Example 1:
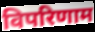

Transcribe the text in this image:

विपरिणाम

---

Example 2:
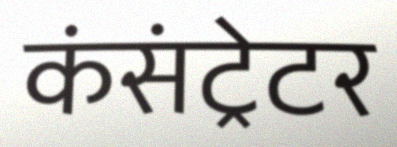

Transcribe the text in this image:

कंसंट्रेटर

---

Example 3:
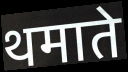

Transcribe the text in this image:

थमाते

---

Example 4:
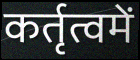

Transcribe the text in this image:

कर्तृत्वमें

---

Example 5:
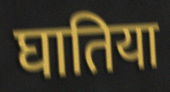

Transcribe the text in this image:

घातिया